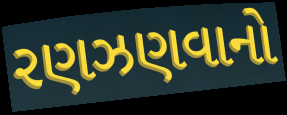
રણઝણવાનો